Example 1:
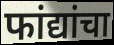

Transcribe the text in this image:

फांद्यांचा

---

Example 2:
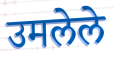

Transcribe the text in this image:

उमलेले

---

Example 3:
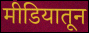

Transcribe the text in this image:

मीडियातून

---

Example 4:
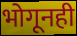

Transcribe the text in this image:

भोगूनही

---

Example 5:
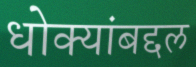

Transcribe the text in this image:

धोक्यांबद्दल